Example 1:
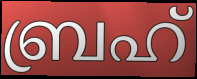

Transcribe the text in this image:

ബ്രഹ്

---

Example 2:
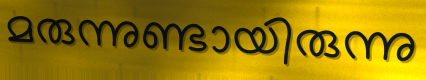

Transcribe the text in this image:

മരുന്നുണ്ടായിരുന്നു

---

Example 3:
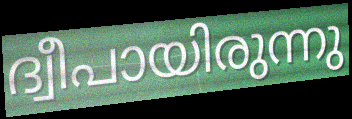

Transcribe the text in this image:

ദ്വീപായിരുന്നു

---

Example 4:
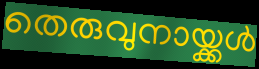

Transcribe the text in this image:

തെരുവുനായ്ക്കൾ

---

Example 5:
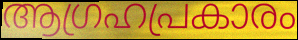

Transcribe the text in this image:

ആഗ്രഹപ്രകാരം